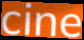
cine